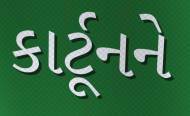
કાર્ટૂનને